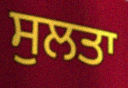
ਸੁਲਤਾ